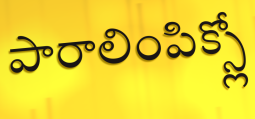
పారాలింపిక్స్లో